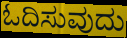
ಓದಿಸುವುದು